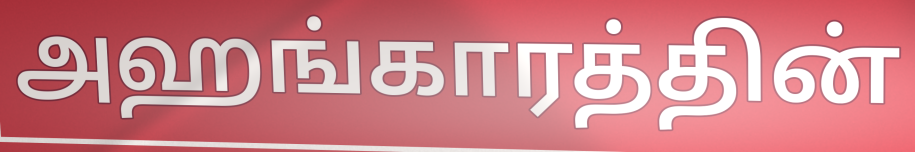
அஹங்காரத்தின்